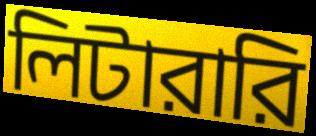
লিটারারি